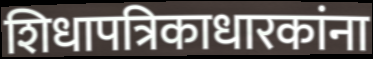
शिधापत्रिकाधारकांना